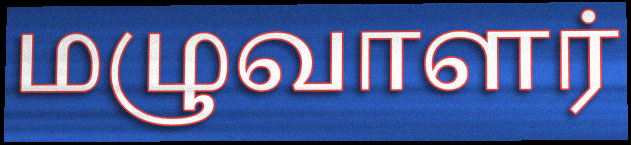
மழுவாளர்